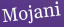
Mojani